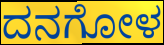
ದನಗೋಳ